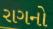
રાગનો